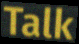
Talk